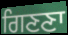
ਗਿਣਣਾ